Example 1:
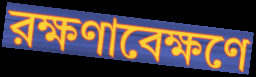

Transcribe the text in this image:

রক্ষণাবেক্ষণে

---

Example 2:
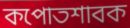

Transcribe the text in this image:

কপোতশাবক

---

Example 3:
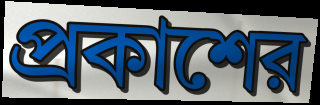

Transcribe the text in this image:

প্রকাশের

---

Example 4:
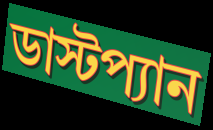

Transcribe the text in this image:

ডাস্টপ্যান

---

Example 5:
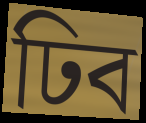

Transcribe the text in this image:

ঢিব